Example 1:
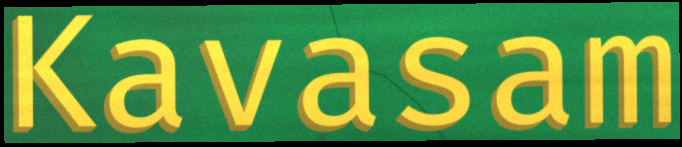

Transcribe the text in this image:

Kavasam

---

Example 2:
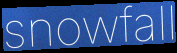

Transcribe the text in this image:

snowfall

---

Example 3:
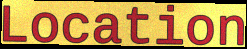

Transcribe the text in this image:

Location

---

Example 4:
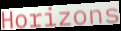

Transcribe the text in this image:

Horizons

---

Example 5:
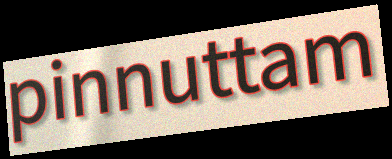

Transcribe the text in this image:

pinnuttam